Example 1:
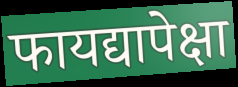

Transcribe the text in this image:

फायद्यापेक्षा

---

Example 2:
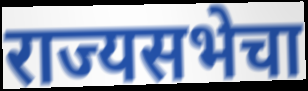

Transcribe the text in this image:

राज्यसभेचा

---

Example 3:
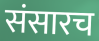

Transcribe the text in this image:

संसारच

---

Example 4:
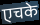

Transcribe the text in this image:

एचके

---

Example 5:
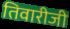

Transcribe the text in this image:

तिवारीजी